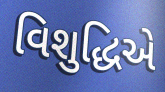
વિશુદ્ધિએ